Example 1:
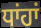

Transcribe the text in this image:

ਧਾਂਹਾਂ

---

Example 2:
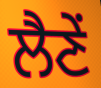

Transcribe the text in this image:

ਲੈਣੇਂ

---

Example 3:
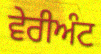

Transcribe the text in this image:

ਵੇਰੀਅੰਟ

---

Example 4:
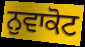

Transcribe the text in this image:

ਨੁਵਾਕੋਟ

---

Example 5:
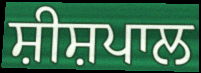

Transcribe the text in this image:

ਸ਼ੀਸ਼ਪਾਲ